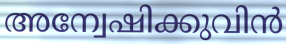
അന്വേഷിക്കുവിൻ